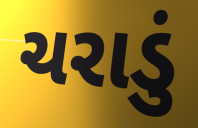
ચરાડું